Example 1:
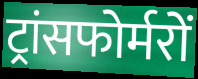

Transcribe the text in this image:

ट्रांसफोर्मरों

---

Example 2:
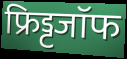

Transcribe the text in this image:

फ्रिड्टजॉफ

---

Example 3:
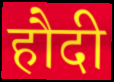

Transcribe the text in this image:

हौदी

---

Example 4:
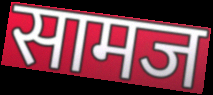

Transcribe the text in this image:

सामज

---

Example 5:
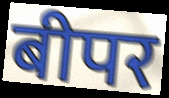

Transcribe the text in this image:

बीपर